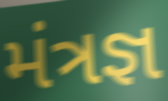
મંત્રજ્ઞ